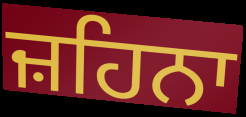
ਜ਼ਹਿਨਾ